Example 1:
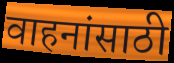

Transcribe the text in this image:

वाहनांसाठी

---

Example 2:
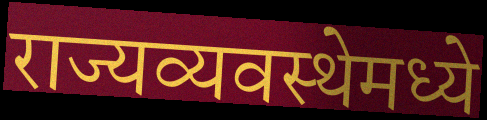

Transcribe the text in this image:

राज्यव्यवस्थेमध्ये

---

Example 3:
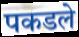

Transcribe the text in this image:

पकडले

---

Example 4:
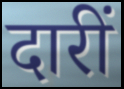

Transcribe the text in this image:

दारीं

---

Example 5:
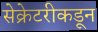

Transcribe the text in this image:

सेक्रेटरीकडून